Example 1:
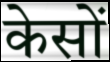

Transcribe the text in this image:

केसों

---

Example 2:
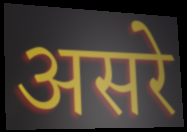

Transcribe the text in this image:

असरे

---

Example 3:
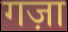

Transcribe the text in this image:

गज़ा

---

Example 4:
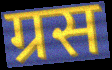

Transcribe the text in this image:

ग्रस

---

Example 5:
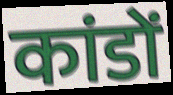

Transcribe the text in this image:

कांडों